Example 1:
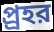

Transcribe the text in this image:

প্র্রহর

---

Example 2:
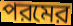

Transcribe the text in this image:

পরমের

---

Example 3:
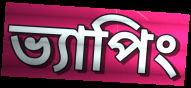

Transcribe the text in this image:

ভ্যাপিং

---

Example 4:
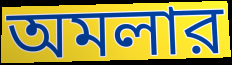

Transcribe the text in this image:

অমলার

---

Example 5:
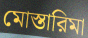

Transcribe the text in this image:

মোস্তারিমা